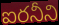
ఐరనీని